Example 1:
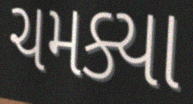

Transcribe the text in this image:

ચમક્યા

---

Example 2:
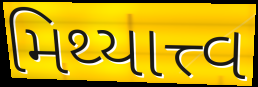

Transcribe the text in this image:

મિથ્યાત્ત્વ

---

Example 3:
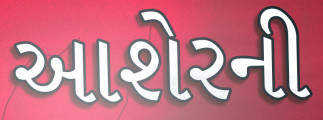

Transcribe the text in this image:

આશેરની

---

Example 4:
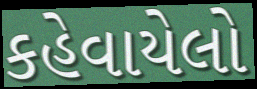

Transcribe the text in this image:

કહેવાયેલો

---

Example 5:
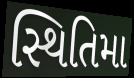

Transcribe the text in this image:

સ્થિતિમા